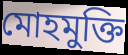
মোহমুক্তি